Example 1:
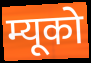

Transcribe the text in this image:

म्यूको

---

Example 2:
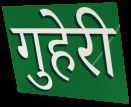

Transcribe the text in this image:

गुहेरी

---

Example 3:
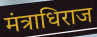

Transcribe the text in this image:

मंत्राधिराज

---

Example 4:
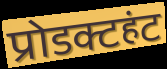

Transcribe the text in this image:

प्रोडक्टहंट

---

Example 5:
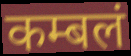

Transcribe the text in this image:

कम्बलं